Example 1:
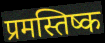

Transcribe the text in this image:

प्रमस्तिष्क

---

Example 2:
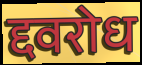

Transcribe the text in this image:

द्दवरोध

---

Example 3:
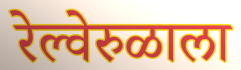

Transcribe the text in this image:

रेल्वेरुळाला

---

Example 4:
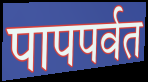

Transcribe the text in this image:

पापपर्वत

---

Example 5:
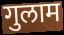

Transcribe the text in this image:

गुलाम